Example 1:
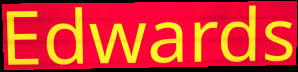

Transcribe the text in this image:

Edwards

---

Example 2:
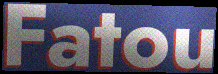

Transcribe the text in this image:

Fatou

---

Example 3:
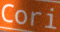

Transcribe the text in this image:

Cori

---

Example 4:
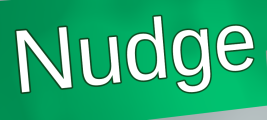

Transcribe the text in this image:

Nudge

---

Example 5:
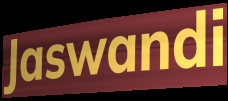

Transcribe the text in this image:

Jaswandi